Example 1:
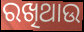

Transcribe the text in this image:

ରଖିଥାଉ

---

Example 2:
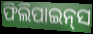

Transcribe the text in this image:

ଫିଲିପାଇନ୍‍ସ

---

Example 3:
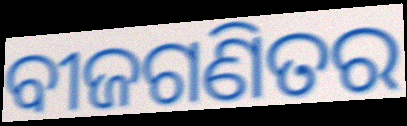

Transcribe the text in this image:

ବୀଜଗଣିତର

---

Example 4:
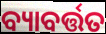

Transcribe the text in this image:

ବ୍ୟାବର୍ତ୍ତତ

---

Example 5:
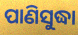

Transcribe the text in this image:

ପାଣିସୁଦ୍ଧା